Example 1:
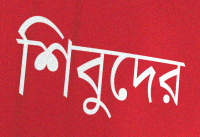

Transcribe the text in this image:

শিবুদের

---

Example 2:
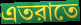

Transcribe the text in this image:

এতরাতে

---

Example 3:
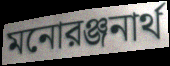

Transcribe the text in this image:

মনোরঞ্জনার্থ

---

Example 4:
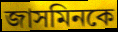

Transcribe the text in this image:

জাসমিনকে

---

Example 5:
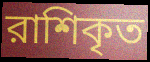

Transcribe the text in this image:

রাশিকৃত